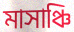
মাসাঞ্চি